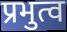
प्रभुत्व